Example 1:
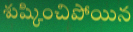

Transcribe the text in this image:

శుష్కించిపోయిన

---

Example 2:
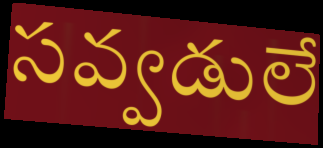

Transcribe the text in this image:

సవ్వడులే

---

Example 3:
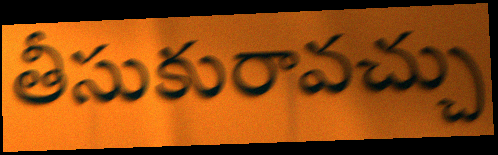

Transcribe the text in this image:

తీసుకురావచ్చు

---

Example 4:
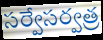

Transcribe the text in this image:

సర్వేసర్వత్ర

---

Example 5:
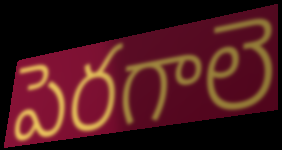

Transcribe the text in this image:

పెరగాలె